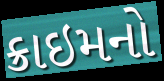
ક્રાઇમનો